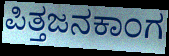
ಪಿತ್ತಜನಕಾಂಗ